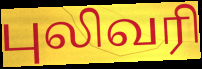
புலிவரி